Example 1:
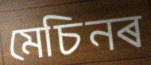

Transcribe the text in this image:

মেচিনৰ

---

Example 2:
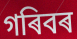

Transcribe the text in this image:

গৰিবৰ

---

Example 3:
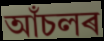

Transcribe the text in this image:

আঁচলৰ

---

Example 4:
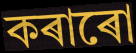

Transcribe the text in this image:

কৰাৰো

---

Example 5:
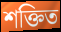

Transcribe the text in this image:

শক্তিত